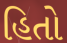
હિતો